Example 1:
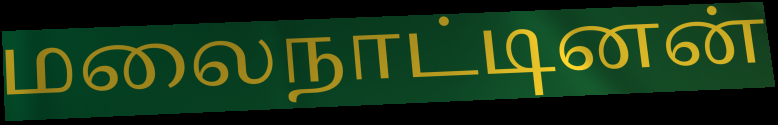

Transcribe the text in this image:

மலைநாட்டினன்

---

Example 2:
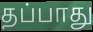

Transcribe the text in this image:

தப்பாது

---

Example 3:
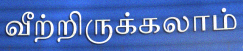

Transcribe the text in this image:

வீற்றிருக்கலாம்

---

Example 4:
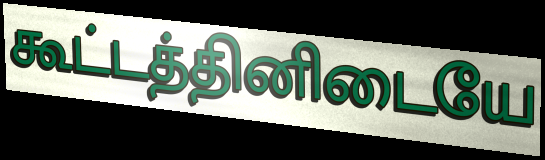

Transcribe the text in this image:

கூட்டத்தினிடையே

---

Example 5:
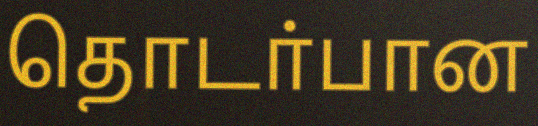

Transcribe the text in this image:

தொடர்பான